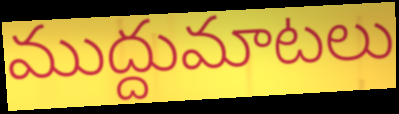
ముద్దుమాటలు